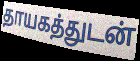
தாயகத்துடன்